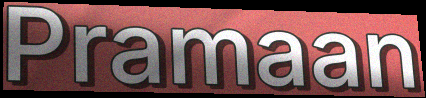
Pramaan